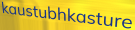
kaustubhkasture